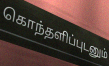
கொந்தளிப்புடனும்